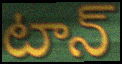
టాన్